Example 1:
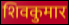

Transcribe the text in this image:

शिवकुमार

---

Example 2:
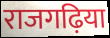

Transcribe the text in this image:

राजगढ़िया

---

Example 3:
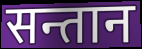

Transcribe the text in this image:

सन्तान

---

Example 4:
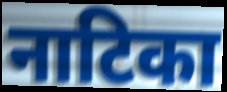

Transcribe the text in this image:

नाटिका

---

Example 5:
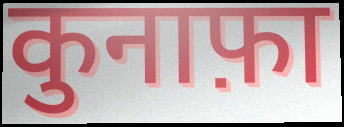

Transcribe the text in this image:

कुनाफ़ा